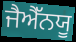
ਜੈਐੱਨਯੂ